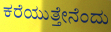
ಕರೆಯುತ್ತೇನೆಂದು